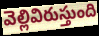
వెల్లివిరుస్తుంది